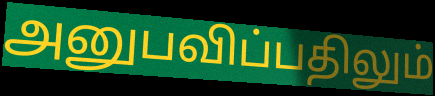
அனுபவிப்பதிலும்